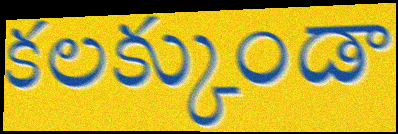
కలక్కుండా